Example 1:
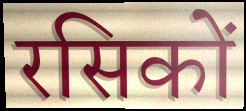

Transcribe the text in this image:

रसिकों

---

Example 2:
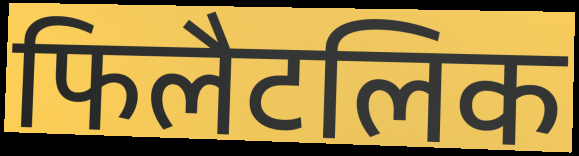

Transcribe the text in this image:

फिलैटलिक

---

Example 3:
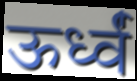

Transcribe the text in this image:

ऊर्ध्व॑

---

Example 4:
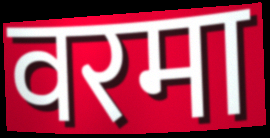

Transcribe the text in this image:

वरमा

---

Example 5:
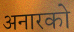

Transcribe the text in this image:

अनारको